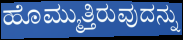
ಹೊಮ್ಮುತ್ತಿರುವುದನ್ನು